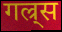
गल्र्स